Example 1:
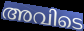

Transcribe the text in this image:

അവിടെ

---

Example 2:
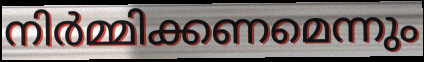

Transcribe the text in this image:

നിർമ്മിക്കണമെന്നും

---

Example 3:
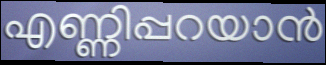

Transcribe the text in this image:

എണ്ണിപ്പറയാൻ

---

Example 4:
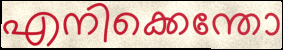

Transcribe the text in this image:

എനിക്കെന്തോ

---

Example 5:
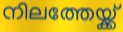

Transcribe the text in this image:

നിലത്തേയ്ക്ക്